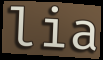
lia